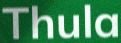
Thula